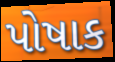
પોષાક